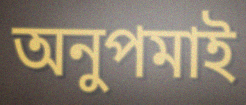
অনুপমাই